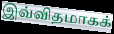
இவ்விதமாகக்